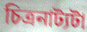
চিত্রনাট্যটা